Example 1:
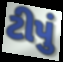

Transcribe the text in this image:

ટીપું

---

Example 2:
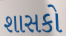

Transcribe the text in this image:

શાસકો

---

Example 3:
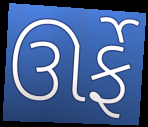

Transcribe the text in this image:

ઊર્ફે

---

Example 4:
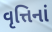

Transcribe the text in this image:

વૃત્તિનાં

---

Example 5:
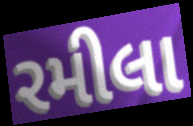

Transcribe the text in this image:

રમીલા